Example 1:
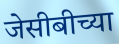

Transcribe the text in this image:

जेसीबीच्या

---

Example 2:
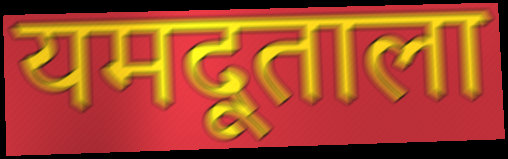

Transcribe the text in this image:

यमदूताला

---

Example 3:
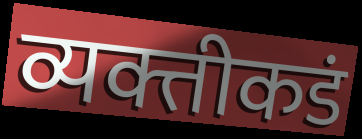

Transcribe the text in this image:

व्यक्तीकडं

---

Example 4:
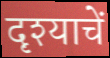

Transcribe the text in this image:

दृश्याचें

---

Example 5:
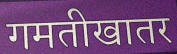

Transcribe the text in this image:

गमतीखातर